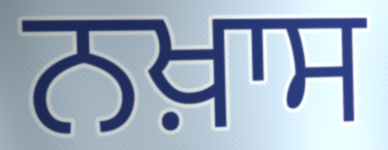
ਨਖ਼ਾਸ